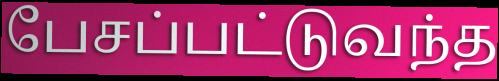
பேசப்பட்டுவந்த